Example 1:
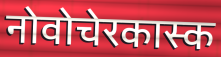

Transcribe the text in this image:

नोवोचेरकास्क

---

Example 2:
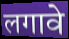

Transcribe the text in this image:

लगावे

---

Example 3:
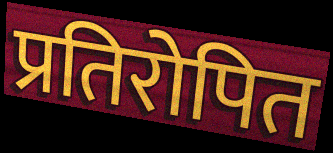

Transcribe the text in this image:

प्रतिरोपित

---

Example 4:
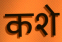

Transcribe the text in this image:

कशे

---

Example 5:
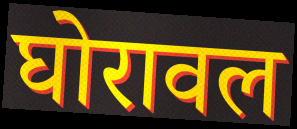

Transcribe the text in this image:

घोरावल